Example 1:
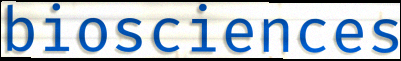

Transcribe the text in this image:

biosciences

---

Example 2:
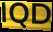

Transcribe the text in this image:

IQD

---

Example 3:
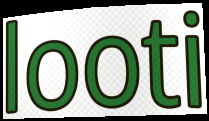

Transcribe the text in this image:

looti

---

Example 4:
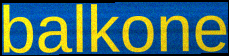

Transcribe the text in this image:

balkone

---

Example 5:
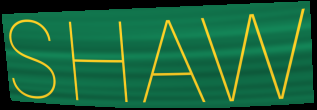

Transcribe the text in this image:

SHAW